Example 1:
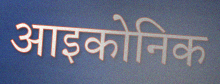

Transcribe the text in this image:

आइकोनिक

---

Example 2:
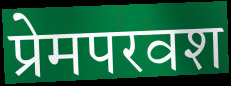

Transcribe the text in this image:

प्रेमपरवश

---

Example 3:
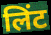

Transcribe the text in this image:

लिंट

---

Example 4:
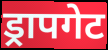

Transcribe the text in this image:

ड्रापगेट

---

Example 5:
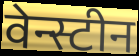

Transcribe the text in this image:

वेन्स्टीन